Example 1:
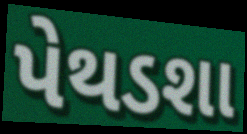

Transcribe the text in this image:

પેથડશા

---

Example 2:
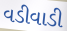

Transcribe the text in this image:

વડીવાડી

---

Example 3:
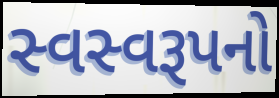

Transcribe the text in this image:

સ્વસ્વરૂપનો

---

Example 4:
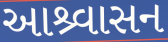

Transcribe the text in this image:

આશ્ર્વાસન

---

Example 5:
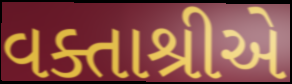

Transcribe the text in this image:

વક્તાશ્રીએ